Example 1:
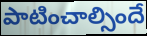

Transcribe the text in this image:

పాటించాల్సిందే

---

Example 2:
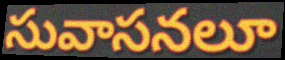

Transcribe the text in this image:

సువాసనలూ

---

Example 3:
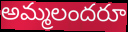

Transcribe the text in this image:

అమ్మలందరూ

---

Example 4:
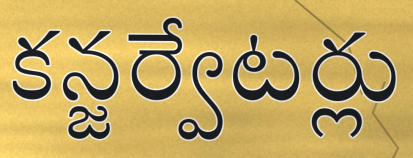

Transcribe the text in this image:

కన్జర్వేటర్లు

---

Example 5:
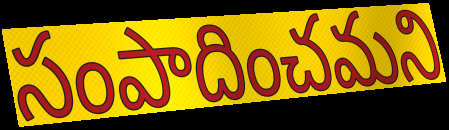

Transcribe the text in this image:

సంపాదించమని